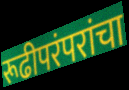
रूढीपरंपरांचा